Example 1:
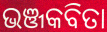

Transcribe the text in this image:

ଭଞ୍ଜକବିତା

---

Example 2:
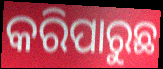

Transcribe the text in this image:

କରିପାରୁଛ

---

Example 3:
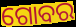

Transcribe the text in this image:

ଗୋବର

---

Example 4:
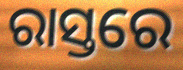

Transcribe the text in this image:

ରାସ୍ତରେ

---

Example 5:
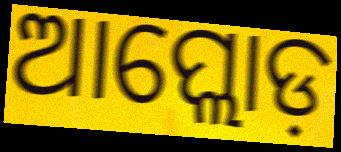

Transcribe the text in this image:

ଆପ୍ଲୋଡ଼